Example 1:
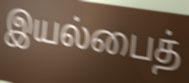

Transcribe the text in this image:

இயல்பைத்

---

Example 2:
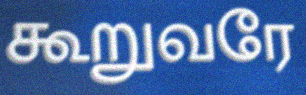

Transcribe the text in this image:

கூறுவரே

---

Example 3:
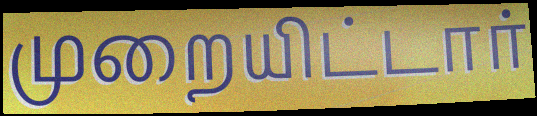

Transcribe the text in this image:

முறையிட்டார்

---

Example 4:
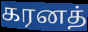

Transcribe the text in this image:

கரனத்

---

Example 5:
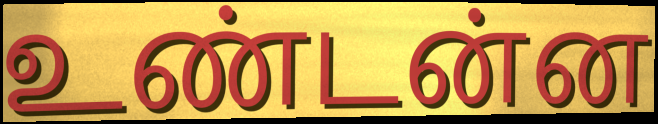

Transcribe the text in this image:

உண்டன்ன